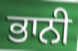
ਭਾਨੀ